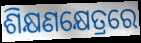
ଶିକ୍ଷଣକ୍ଷେତ୍ରରେ